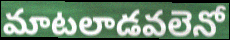
మాటలాడవలెనో